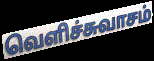
வெளிச்சுவாசம்